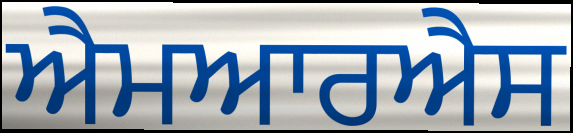
ਐਮਆਰਐਸ